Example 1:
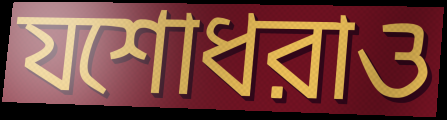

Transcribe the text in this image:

যশোধরাও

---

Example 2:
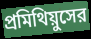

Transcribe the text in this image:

প্রমিথিয়ুসের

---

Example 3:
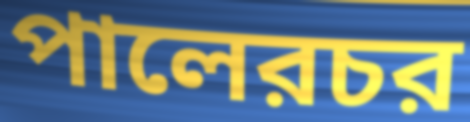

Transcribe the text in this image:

পালেরচর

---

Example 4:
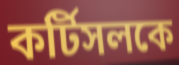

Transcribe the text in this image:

কর্টিসলকে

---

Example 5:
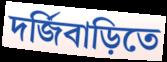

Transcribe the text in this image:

দর্জিবাড়িতে